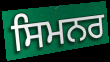
ਸਿਮਨਰ